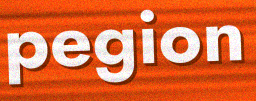
pegion